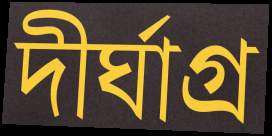
দীর্ঘাগ্র